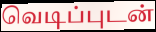
வெடிப்புடன்